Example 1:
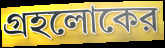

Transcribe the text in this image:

গ্রহলোকের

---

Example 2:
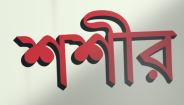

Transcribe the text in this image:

শশীর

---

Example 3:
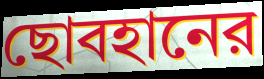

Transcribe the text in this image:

ছোবহানের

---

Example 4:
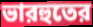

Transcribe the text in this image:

ভারহুতের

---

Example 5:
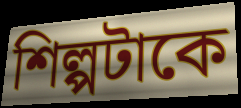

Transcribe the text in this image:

শিল্পটাকে